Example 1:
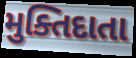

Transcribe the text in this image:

મુક્તિદાતા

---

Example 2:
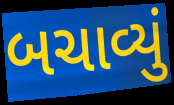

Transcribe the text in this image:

બચાવ્યું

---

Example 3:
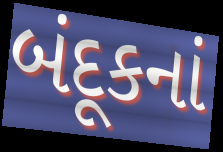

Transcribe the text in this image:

બંદૂકનાં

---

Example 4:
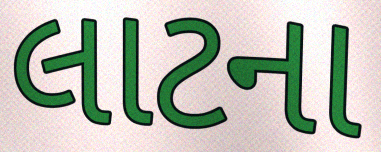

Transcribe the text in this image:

લાટના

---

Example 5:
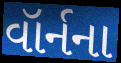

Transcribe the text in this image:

વૉર્નના